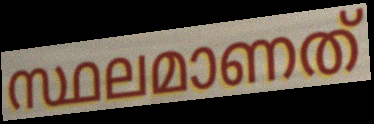
സ്ഥലമാണത്